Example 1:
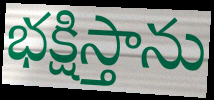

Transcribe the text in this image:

భక్షిస్తాను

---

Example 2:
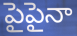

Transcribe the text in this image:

పైపైనా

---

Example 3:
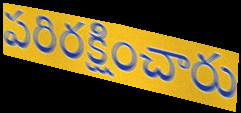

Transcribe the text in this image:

పరిరక్షించారు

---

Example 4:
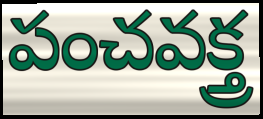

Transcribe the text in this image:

పంచవక్త్ర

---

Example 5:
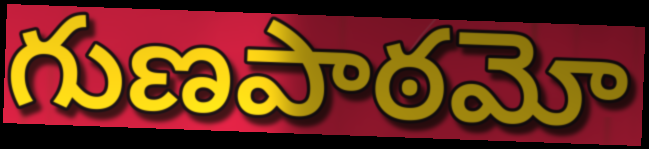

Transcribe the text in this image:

గుణపాఠమో